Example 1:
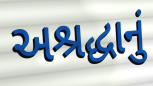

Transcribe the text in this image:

અશ્રદ્ધાનું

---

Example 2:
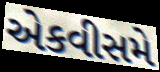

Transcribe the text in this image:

એકવીસમે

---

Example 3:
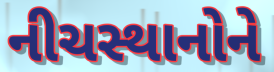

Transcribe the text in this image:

નીચસ્થાનોને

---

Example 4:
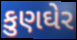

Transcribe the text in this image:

કુણઘેર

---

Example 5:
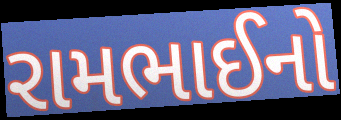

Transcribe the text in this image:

રામભાઈનો